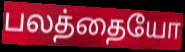
பலத்தையோ